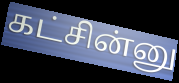
கட்சின்னு